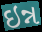
ઇન્ન